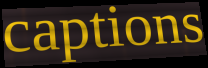
captions